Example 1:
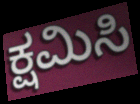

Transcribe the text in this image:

ಕ್ಷಮಿಸಿ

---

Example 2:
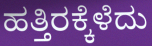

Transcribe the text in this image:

ಹತ್ತಿರಕ್ಕೆಳೆದು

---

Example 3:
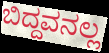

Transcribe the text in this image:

ಬಿದ್ದವನಲ್ಲ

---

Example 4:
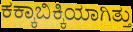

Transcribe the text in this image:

ಕಕ್ಕಾಬಿಕ್ಕಿಯಾಗಿತ್ತು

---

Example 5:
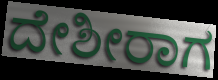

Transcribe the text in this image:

ದೇಶೀರಾಗ